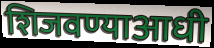
शिजवण्याआधी